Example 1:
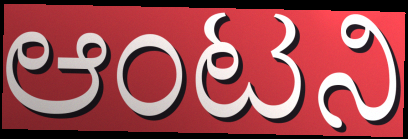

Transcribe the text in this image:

ಆಂಟನಿ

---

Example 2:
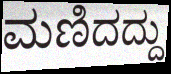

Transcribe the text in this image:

ಮಣಿದದ್ದು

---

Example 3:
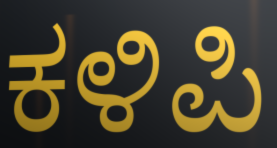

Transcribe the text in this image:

ಕಳಿಪಿ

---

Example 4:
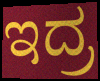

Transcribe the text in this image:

ಇದ್ರ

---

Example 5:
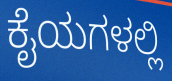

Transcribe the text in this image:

ಕೈಯಗಳಲ್ಲಿ